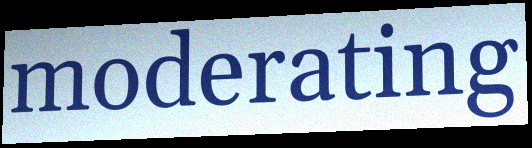
moderating